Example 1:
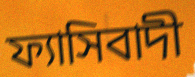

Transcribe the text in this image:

ফ্যাসিবাদী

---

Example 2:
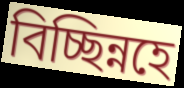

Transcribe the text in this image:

বিচ্ছিন্নহে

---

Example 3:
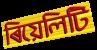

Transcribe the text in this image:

ৰিয়েলিটি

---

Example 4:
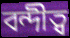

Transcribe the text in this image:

বন্দীত্ব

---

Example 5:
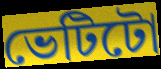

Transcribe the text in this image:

ভেটিটো